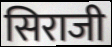
सिराजी